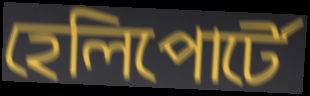
হেলিপোর্টে